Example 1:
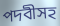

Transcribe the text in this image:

পদবীসহ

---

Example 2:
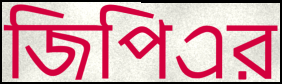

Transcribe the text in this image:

জিপিএর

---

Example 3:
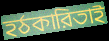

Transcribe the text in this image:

হঠকারিতাই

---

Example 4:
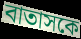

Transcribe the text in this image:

বাতাসকে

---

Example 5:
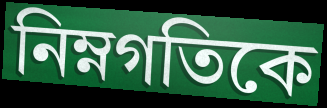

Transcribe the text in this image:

নিম্নগতিকে